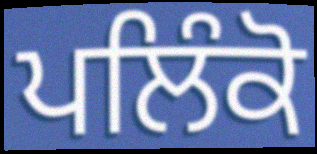
ਪਲਿੰਕੋ